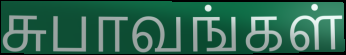
சுபாவங்கள்